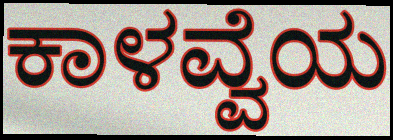
ಕಾಳವ್ವೆಯ